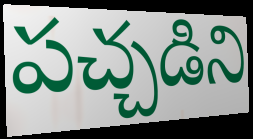
పచ్చడిని